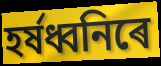
হৰ্ষধ্বনিৰে